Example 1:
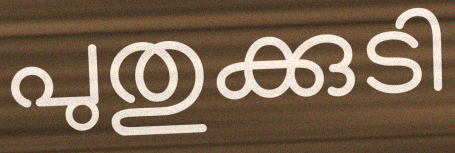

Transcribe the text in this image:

പുതുക്കുടി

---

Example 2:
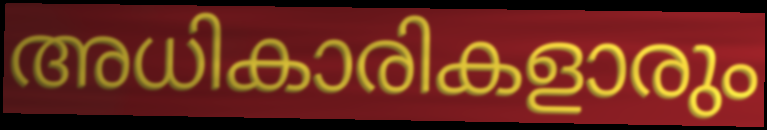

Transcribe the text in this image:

അധികാരികളാരും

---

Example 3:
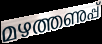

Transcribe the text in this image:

മഴത്തണുപ്പ്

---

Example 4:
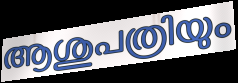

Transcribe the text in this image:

ആശുപത്രിയും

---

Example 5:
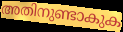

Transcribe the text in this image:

അതിനുണ്ടാകുക